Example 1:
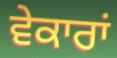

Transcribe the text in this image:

ਵੇਕਾਰਾਂ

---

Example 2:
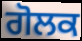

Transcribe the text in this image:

ਗੋਲਕ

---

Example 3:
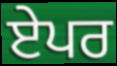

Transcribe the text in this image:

ਏਪਰ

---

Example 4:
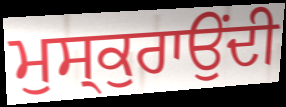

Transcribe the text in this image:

ਮੁਸ੍ਕੁਰਾਉਂਦੀ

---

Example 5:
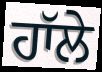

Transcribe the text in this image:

ਹਾੱਲੇ